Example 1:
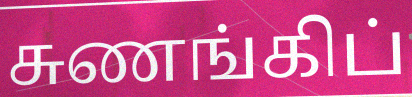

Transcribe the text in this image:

சுணங்கிப்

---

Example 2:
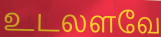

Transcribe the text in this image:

உடலளவே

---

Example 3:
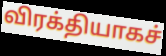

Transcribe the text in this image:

விரக்தியாகச்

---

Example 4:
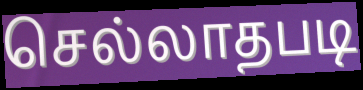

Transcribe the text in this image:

செல்லாதபடி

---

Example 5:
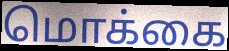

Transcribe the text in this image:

மொக்கை